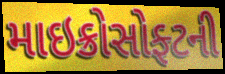
માઇક્રોસોફ્ટની